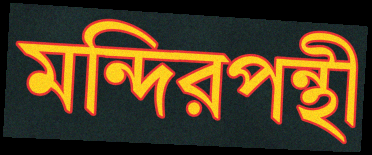
মন্দিরপন্থী